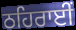
ਠਹਿਰਾਈਂ